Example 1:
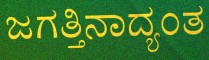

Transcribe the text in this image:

ಜಗತ್ತಿನಾದ್ಯಂತ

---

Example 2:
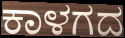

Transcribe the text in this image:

ಕಾಳಗದ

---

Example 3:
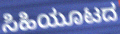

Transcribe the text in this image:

ಸಿಹಿಯೂಟದ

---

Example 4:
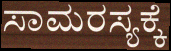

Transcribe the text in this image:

ಸಾಮರಸ್ಯಕ್ಕೆ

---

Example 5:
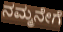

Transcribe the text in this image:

ನಮ್ಮನೇಗೆ